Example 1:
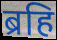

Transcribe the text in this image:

ब्रहि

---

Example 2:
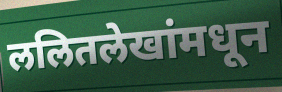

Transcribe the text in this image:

ललितलेखांमधून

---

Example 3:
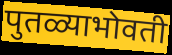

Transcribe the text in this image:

पुतळ्याभोवती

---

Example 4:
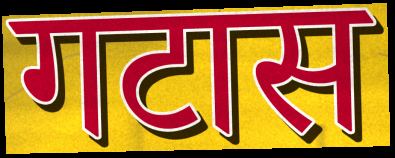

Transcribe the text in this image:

गटास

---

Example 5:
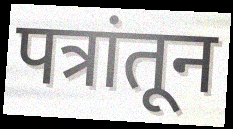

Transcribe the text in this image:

पत्रांतून